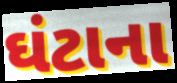
ઘંટાના